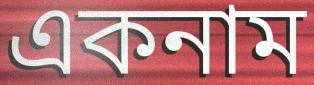
একনাম